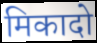
मिकादो